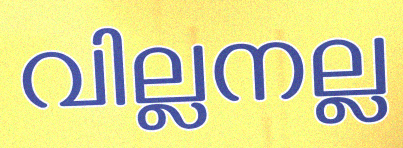
വില്ലനല്ല